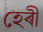
হেৰী